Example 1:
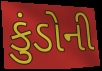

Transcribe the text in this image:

કુંડોની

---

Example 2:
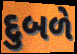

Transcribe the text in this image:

દુબળે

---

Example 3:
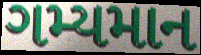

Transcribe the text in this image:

ગમ્યમાન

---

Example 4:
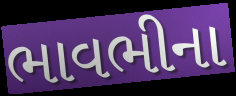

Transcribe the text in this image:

ભાવભીના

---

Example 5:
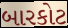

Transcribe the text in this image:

બારકોટ